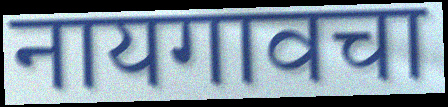
नायगावचा